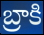
బ్రాకి